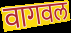
वागवल